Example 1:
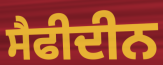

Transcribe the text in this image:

ਸੈਫੀਦੀਨ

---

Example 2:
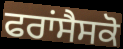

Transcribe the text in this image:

ਫਰਾਂਸੈਸਕੋ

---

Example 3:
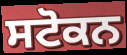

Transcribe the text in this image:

ਸਟੋਕਨ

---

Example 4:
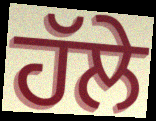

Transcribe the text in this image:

ਹੱਲੇ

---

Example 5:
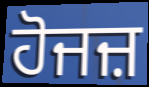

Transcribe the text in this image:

ਹੋਜਜ਼